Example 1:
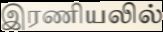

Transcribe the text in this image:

இரணியலில்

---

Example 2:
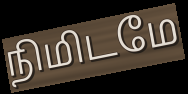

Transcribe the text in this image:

நிமிடமே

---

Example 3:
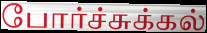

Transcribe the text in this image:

போர்ச்சுக்கல்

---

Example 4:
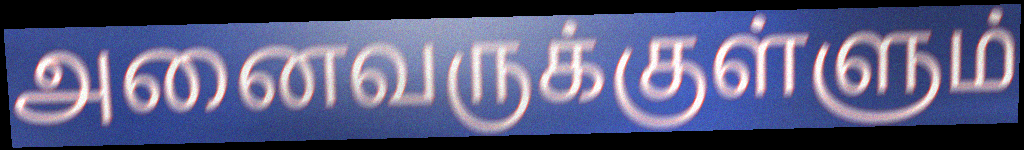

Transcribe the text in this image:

அனைவருக்குள்ளும்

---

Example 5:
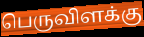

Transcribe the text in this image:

பெருவிளக்கு